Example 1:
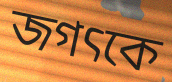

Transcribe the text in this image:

জগৎকে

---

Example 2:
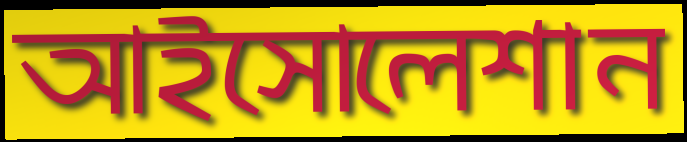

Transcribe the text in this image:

আইসোলেশান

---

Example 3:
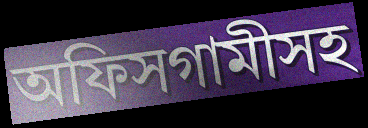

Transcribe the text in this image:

অফিসগামীসহ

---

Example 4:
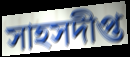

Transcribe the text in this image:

সাহসদীপ্ত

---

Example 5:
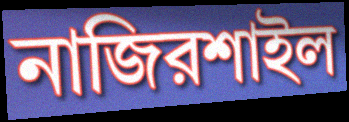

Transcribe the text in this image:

নাজিরশাইল